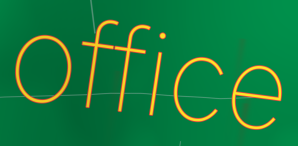
office